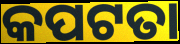
କପଟତା